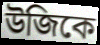
উজিকে